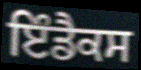
ਇੰਡੈਕਸ